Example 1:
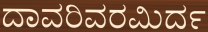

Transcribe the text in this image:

ದಾವರಿವರಮಿರ್ದ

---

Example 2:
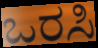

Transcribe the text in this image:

ಒರಸಿ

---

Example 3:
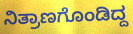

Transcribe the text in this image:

ನಿತ್ರಾಣಗೊಂಡಿದ್ದ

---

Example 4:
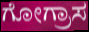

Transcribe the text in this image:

ಗೋಗ್ರಾಸ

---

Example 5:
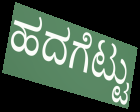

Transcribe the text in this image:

ಹದಗೆಟ್ಟು